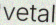
vetal